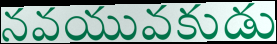
నవయువకుడు